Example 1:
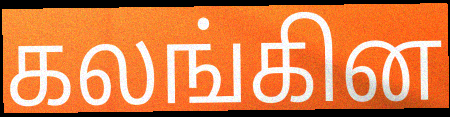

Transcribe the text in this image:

கலங்கின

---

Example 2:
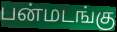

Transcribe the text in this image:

பன்மடங்கு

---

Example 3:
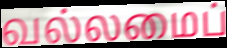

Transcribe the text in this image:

வல்லமைப்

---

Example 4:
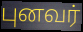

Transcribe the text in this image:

புனவர்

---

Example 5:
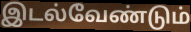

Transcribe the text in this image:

இடல்வேண்டும்